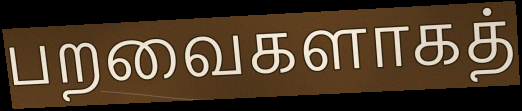
பறவைகளாகத்